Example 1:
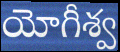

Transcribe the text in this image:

యోగీశ్వ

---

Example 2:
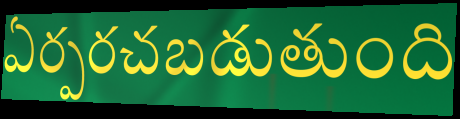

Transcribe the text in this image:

ఏర్పరచబడుతుంది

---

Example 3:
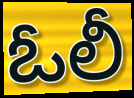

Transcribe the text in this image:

ఓలీ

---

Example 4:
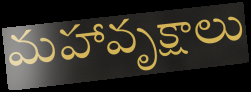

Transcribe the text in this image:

మహావృక్షాలు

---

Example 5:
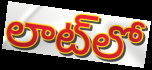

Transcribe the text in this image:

లాట్‌లో